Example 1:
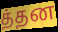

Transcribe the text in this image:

த்தன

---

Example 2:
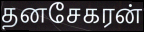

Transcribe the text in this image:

தனசேகரன்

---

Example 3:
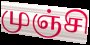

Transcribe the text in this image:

முஞ்சி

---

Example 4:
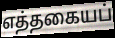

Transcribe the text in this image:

எத்தகையப்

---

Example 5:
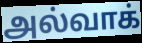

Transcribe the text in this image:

அல்வாக்